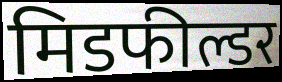
मिडफील्डर